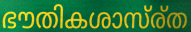
ഭൗതികശാസ്ര്ത